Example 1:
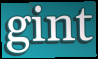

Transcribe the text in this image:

gint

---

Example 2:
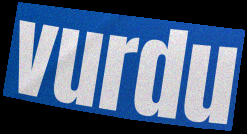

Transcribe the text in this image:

vurdu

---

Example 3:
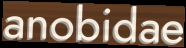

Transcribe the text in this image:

anobidae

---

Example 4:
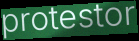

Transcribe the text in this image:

protestor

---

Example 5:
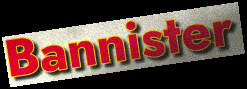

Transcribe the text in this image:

Bannister